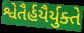
શ્વેતૈર્હયૈર્યુક્તે